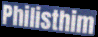
Philisthim